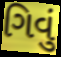
ગિવું